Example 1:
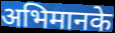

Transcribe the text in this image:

अभिमानके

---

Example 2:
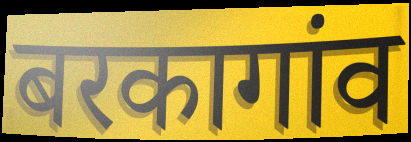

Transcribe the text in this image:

बरकागांव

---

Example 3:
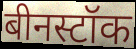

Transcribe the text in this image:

बीनस्टॉक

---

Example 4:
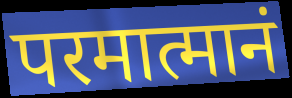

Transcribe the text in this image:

परमात्मानं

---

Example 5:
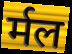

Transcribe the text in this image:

र्मल